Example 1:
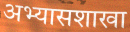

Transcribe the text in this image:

अभ्यासशाखा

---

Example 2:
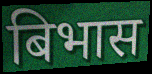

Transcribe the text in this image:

बिभास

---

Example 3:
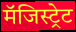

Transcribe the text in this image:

मॅजिस्ट्रेट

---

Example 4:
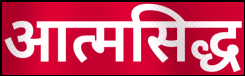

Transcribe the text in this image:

आत्मसिद्ध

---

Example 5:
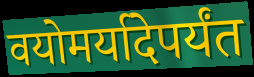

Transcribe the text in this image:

वयोमर्यादेपर्यंत